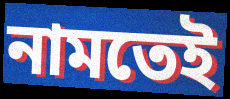
নামতেই